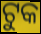
ଟୁକ